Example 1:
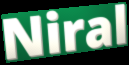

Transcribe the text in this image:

Niral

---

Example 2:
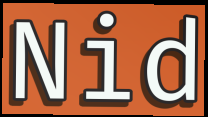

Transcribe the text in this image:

Nid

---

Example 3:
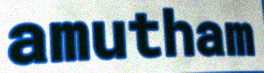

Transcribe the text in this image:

amutham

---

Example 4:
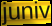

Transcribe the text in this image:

juniv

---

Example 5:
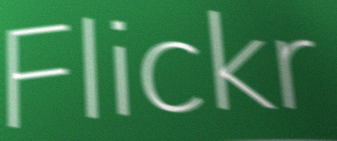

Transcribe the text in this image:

Flickr